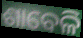
ଶାବେଳି